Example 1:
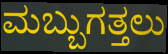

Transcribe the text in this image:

ಮಬ್ಬುಗತ್ತಲು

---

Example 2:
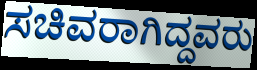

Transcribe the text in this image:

ಸಚಿವರಾಗಿದ್ದವರು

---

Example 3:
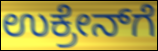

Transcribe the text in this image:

ಉಕ್ರೇನ್‌ಗೆ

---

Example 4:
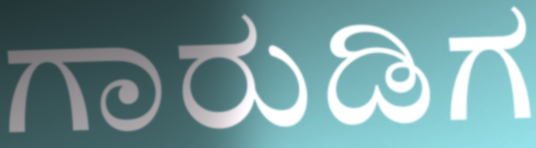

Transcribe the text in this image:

ಗಾರುಡಿಗ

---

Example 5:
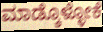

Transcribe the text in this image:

ಮಾಡ್ಕೊಳ್ಳೋಕೆ